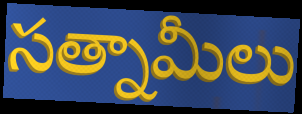
సత్నామీలు